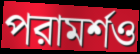
পরামর্শও